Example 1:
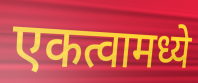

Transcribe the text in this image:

एकत्वामध्ये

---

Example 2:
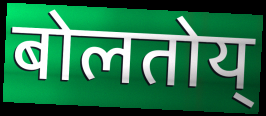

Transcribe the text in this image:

बोलतोय्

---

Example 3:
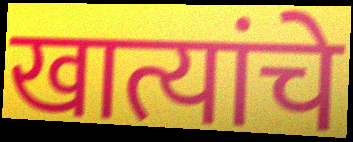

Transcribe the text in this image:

खात्यांचे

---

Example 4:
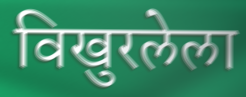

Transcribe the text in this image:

विखुरलेला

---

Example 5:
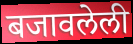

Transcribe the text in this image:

बजावलेली